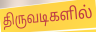
திருவடிகளில்